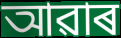
আৱাৰ